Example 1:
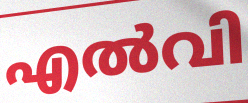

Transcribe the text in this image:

എൽവി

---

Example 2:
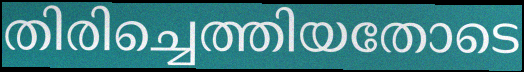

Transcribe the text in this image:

തിരിച്ചെത്തിയതോടെ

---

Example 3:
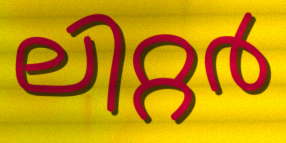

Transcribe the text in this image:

ലിറ്റർ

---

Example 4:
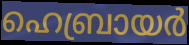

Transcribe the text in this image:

ഹെബ്രായർ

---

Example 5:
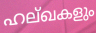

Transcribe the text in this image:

ഹല്ഖകളും